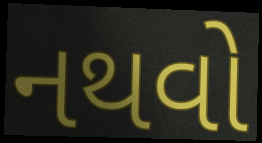
નથવો